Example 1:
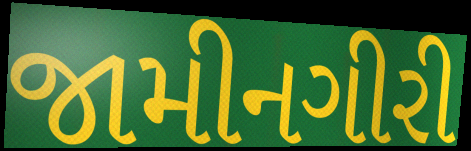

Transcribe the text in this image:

જામીનગીરી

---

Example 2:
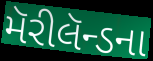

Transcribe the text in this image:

મૅરીલૅન્ડના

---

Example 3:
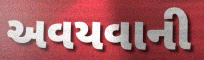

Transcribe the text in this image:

અવયવાની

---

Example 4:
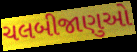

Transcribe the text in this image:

ચલબીજાણુઓ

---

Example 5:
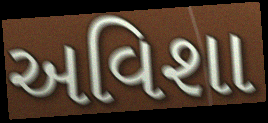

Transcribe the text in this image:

અવિશા